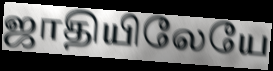
ஜாதியிலேயே